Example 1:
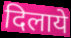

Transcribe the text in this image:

दिलाये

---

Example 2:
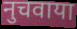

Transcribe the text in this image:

नुचवाया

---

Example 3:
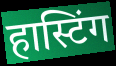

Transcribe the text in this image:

हास्टिंग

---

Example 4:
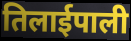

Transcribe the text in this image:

तिलाईपाली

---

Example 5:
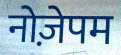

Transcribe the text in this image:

नोज़ेपम